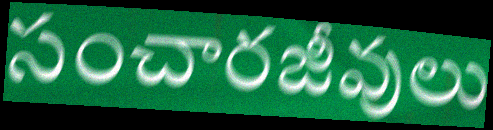
సంచారజీవులు